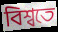
বিশ্বতে